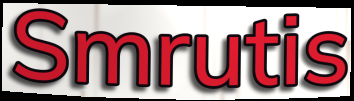
Smrutis